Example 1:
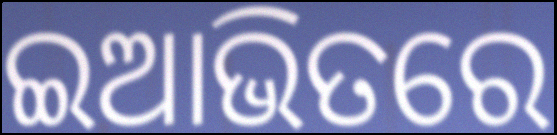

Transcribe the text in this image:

ଇଆଭିତରେ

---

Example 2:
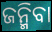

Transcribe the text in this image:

ଜନ୍ମିବା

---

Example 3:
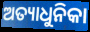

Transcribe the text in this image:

ଅତ୍ୟାଧୁନିକା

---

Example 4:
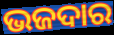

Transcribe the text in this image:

ଭଜଦାର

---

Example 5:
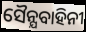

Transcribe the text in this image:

ସୈନ୍ଯବାହିନୀ